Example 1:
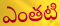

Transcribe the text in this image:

ఎంతటి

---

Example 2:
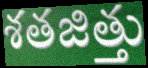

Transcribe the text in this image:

శతజిత్తు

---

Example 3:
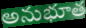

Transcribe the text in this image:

అనుభూత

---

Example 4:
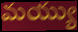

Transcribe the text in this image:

మయ్యు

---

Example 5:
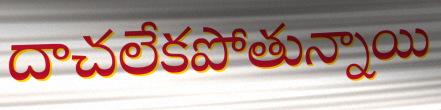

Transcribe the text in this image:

దాచలేకపోతున్నాయి